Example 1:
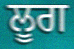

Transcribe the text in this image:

ਲੂਗ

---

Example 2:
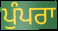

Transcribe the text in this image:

ਪੁੰਪਰਾ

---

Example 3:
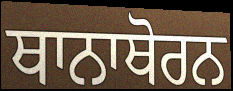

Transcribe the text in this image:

ਥਾਨਾਥੋਰਨ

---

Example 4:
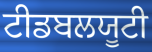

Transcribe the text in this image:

ਟੀਡਬਲਯੂਟੀ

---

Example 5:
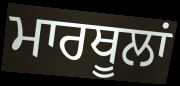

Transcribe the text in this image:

ਮਾਰਥੂਲਾਂ